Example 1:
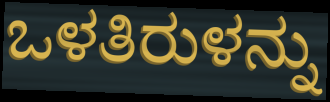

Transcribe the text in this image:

ಒಳತಿರುಳನ್ನು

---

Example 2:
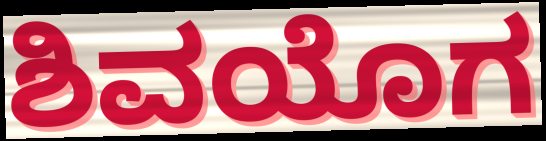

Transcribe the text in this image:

ಶಿವಯೊಗ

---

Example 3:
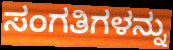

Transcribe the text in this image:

ಸಂಗತಿಗಳನ್ನು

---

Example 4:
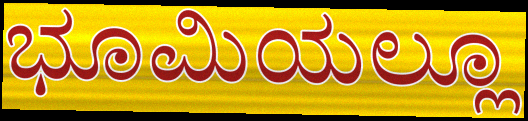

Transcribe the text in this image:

ಭೂಮಿಯಲ್ಲೂ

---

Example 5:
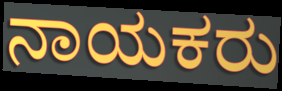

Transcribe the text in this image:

ನಾಯಕರು